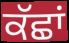
ਕੱਛਾਂ